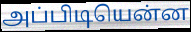
அப்பிடியென்ன